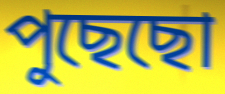
পুছেছো